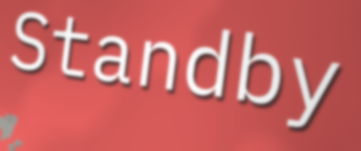
Standby